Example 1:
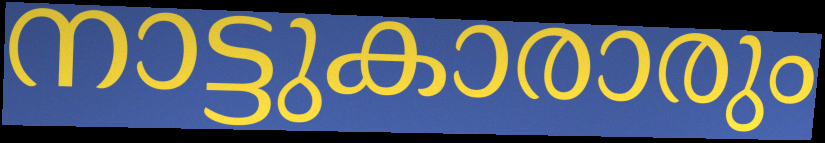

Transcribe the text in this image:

നാട്ടുകാരാരും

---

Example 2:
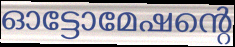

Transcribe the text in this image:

ഓട്ടോമേഷന്റെ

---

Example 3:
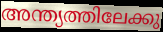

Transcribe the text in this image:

അന്ത്യത്തിലേക്കു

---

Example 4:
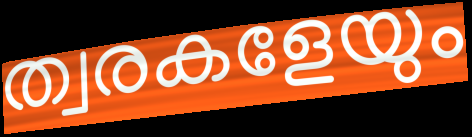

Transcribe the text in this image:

ത്വരകളേയും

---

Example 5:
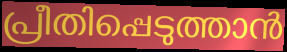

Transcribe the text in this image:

പ്രീതിപ്പെടുത്താൻ